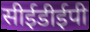
सीईडीईपी